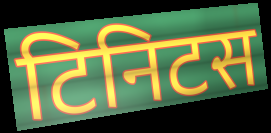
टिनिटस